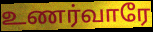
உணர்வாரே